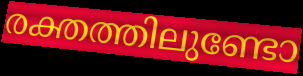
രക്തത്തിലുണ്ടോ